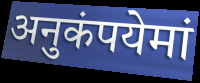
अनुकंपयेमां